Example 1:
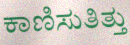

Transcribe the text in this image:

ಕಾಣಿಸುತಿತ್ತು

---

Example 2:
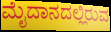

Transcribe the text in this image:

ಮೈದಾನದಲ್ಲಿರುವ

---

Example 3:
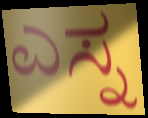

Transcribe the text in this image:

ಎಸ್ನ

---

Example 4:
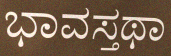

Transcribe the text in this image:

ಭಾವಸ್ತಥಾ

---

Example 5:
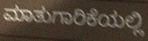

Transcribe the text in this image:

ಮಾತುಗಾರಿಕೆಯಲ್ಲಿ